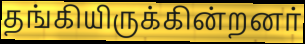
தங்கியிருக்கின்றனர்